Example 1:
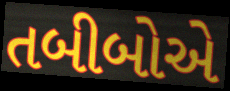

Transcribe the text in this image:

તબીબોએ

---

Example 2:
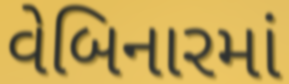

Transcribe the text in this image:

વેબિનારમાં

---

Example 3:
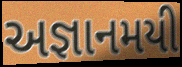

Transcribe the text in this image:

અજ્ઞાનમયી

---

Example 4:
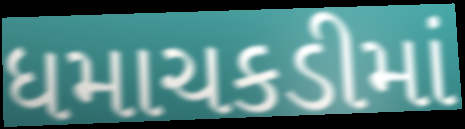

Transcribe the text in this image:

ધમાચકડીમાં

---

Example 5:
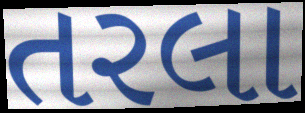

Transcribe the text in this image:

તરલા